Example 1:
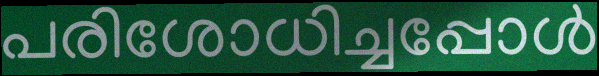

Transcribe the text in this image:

പരിശോധിച്ചപ്പോൾ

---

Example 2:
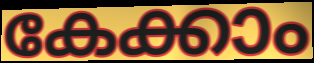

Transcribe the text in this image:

കേക്കാം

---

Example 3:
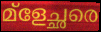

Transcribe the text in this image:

മ്ളേച്ഛരെ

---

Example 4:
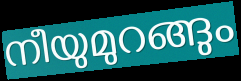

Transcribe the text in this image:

നീയുമുറങ്ങും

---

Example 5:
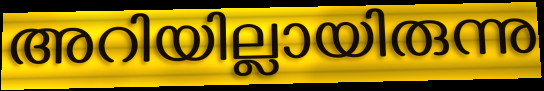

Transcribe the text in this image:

അറിയില്ലായിരുന്നു